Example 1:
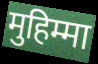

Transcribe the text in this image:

मुहिम्मा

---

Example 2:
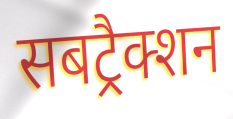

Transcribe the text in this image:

सबट्रैक्शन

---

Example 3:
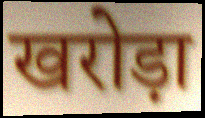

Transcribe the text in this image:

खरोड़ा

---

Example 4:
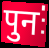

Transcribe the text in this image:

पुनः॑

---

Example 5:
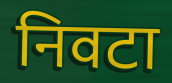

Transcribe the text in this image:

निवटा